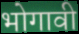
भोगावी